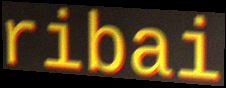
ribai